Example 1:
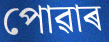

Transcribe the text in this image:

পোৱাৰ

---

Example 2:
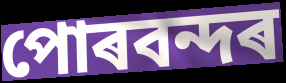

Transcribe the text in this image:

পোৰবন্দৰ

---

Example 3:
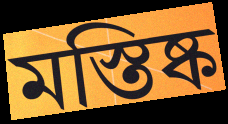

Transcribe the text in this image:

মস্তিষ্ক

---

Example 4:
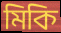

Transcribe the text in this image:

মিকি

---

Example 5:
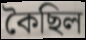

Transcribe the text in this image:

কৈছিল